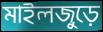
মাইলজুড়ে